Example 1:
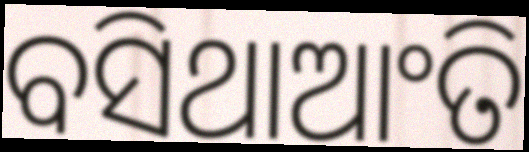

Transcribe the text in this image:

ବସିଥାଆଂତି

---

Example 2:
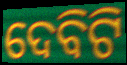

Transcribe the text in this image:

ଦେବିଟି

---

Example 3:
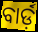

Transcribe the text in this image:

ବାର୍ଡ଼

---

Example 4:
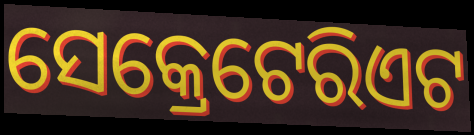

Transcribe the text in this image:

ସେକ୍ରେଟେରିଏଟ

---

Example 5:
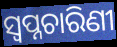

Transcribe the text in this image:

ସ୍ୱପ୍ନଚାରିଣୀ